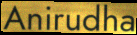
Anirudha